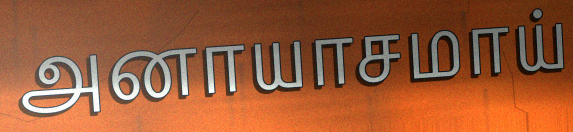
அனாயாசமாய்